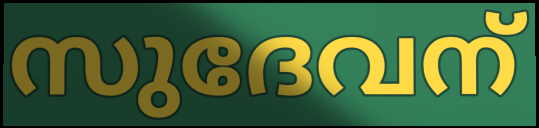
സുദേവന്